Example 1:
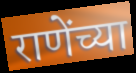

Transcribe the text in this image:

राणेंच्या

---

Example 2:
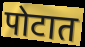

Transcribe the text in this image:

पोटात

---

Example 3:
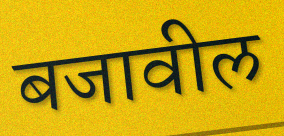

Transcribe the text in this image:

बजावील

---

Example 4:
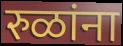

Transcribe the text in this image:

रुळांना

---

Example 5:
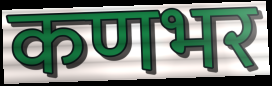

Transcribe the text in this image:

कणभर